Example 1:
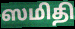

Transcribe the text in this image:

ஸமிதி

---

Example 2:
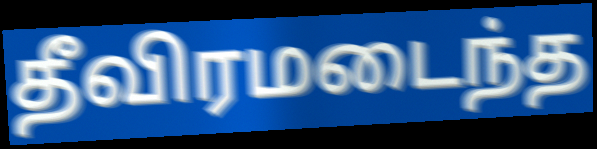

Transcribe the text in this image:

தீவிரமடைந்த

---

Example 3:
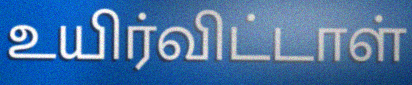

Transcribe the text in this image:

உயிர்விட்டாள்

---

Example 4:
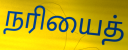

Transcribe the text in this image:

நரியைத்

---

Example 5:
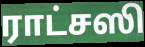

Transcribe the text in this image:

ராட்சஸி